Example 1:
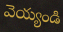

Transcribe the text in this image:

వెయ్యండి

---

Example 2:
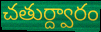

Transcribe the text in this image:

చతుర్ద్వారం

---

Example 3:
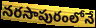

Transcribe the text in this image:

నరసాపురంలోనే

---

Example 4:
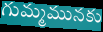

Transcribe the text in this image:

గుమ్మమునకు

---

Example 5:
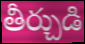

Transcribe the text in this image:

తీర్చుడి